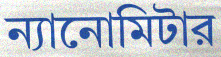
ন্যানোমিটার